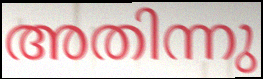
അതിന്നു